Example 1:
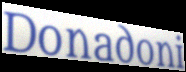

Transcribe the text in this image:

Donadoni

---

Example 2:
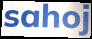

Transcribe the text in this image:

sahoj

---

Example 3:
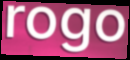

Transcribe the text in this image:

rogo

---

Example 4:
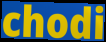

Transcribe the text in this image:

chodi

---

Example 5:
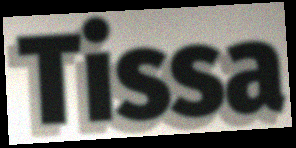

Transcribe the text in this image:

Tissa